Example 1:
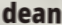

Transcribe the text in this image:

dean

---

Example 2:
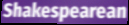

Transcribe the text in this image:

Shakespearean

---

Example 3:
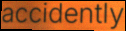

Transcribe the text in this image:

accidently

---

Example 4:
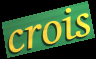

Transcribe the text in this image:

crois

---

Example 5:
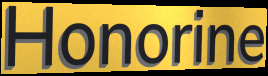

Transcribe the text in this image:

Honorine